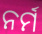
ନର୍ମ